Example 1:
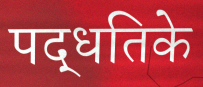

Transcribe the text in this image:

पद्धतिके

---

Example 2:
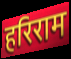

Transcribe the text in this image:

हरिराम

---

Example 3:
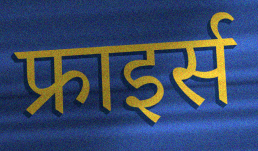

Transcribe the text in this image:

फ्राइर्स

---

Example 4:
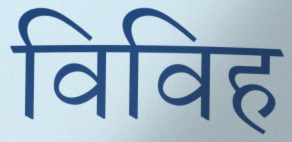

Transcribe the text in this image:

विविह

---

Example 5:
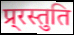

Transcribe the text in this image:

प्र्रस्तुति